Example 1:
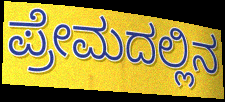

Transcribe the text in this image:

ಪ್ರೇಮದಲ್ಲಿನ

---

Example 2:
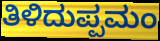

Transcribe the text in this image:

ತಿಳಿದುಪ್ಪಮಂ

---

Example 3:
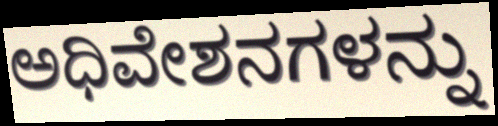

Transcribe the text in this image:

ಅಧಿವೇಶನಗಳನ್ನು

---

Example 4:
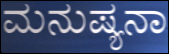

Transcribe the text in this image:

ಮನುಷ್ಯನಾ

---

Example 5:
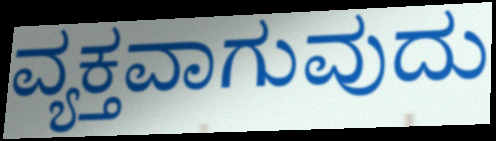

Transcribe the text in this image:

ವ್ಯಕ್ತವಾಗುವುದು